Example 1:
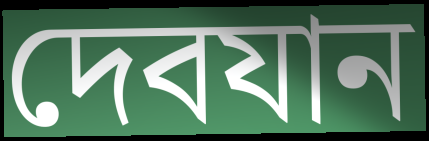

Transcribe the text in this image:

দেবযান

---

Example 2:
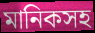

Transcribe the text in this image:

মানিকসহ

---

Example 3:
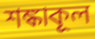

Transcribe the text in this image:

শঙ্কাকূল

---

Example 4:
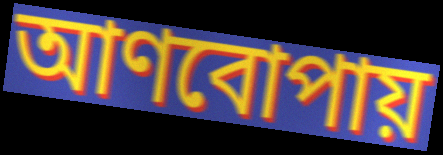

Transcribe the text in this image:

আণবোপায়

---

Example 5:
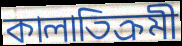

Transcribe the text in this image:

কালাতিক্রমী